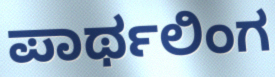
ಪಾರ್ಥಲಿಂಗ